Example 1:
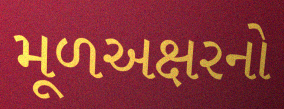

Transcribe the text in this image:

મૂળઅક્ષરનો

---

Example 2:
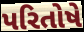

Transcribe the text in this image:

પરિતોષે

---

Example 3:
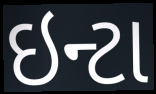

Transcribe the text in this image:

ઇન્ટા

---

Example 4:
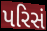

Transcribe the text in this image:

પરિસં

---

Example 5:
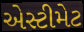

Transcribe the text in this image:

એસ્ટીમેટ